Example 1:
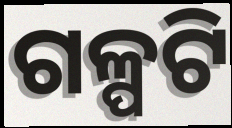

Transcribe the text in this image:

ଗଳ୍ପଟି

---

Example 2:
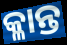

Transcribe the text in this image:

କ୍ଳାନ୍ତ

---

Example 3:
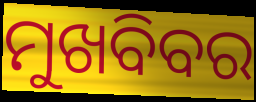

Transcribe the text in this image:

ମୁଖବିବର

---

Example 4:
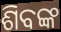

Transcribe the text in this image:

ଶିବଙ୍କ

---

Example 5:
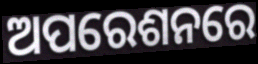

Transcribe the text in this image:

ଅପରେଶନରେ